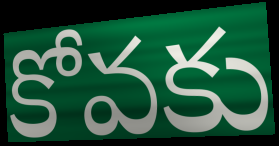
కోవకు